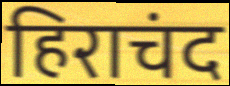
हिराचंद